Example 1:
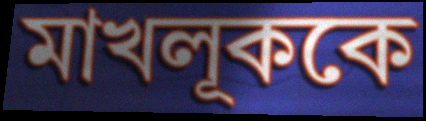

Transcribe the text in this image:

মাখলূককে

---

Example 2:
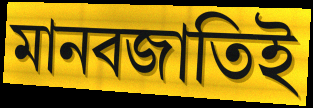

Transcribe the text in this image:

মানবজাতিই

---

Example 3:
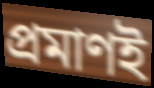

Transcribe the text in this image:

প্রমাণই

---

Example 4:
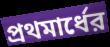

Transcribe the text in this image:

প্রথমার্ধের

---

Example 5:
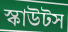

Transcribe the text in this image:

স্কাউটস